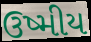
ઉષ્મીય